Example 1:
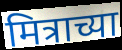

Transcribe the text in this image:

मित्राच्या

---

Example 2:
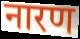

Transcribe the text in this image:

नारण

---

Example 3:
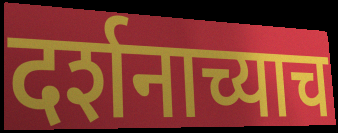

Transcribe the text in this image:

दर्शनाच्याच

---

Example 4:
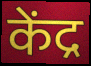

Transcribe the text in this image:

केंद्र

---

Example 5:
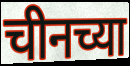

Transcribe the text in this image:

चीनच्या